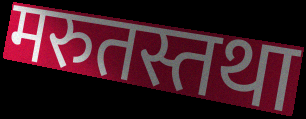
मरुतस्तथा